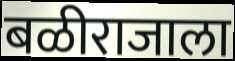
बळीराजाला